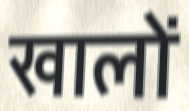
खालों